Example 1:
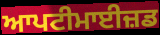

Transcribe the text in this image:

ਆਪਟੀਮਾਈਜ਼ਡ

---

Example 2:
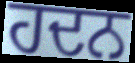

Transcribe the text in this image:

ਹਦਨ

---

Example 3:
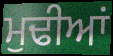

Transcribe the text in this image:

ਮੁਢੀਆਂ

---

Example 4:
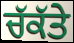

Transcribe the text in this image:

ਚੱਕੱਤੇ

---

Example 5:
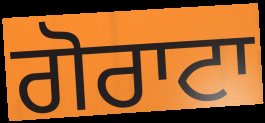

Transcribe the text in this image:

ਗੋਰਾਟਾ